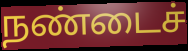
நண்டைச்